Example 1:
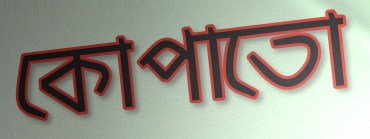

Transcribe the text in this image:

কোপাতো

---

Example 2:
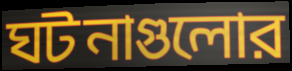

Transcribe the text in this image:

ঘটনাগুলোর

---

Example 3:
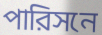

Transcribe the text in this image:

পারিসনে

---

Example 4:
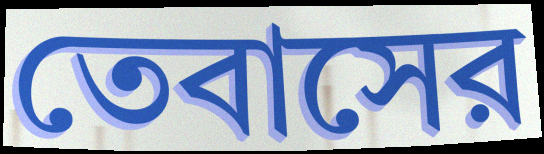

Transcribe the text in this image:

তেবাসের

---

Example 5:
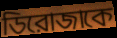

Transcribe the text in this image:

ডিরোজাকে